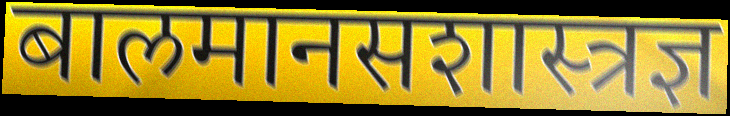
बालमानसशास्त्रज्ञ